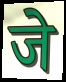
जे